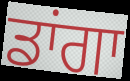
ਡਾਂਗਾ